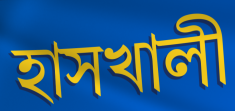
হাসখালী